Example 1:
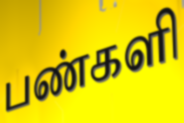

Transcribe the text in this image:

பண்களி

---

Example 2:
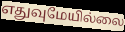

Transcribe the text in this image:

எதுவுமேயில்லை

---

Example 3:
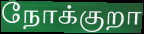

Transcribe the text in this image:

நோக்குறா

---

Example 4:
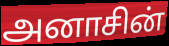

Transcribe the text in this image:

அனாசின்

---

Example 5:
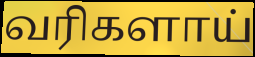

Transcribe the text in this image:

வரிகளாய்